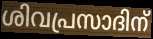
ശിവപ്രസാദിന്